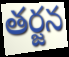
తర్జన